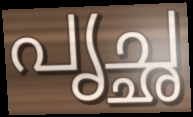
പൃച്ഛ